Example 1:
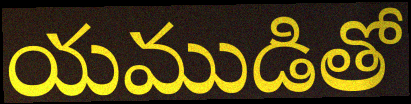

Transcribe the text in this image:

యముడితో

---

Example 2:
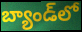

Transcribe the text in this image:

బ్యాండ్‌లో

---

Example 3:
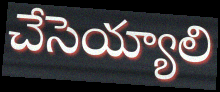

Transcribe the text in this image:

చేసెయ్యాలి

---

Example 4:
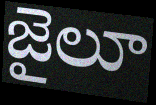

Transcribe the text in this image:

జైలూ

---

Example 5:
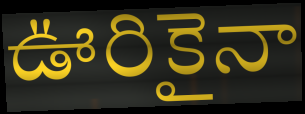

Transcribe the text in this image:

ఊరికైనా